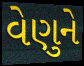
વેણુને